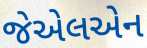
જેએલએન